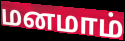
மனமாம்